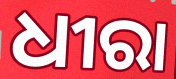
ଧୀରା